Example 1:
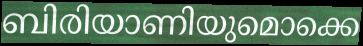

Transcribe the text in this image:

ബിരിയാണിയുമൊക്കെ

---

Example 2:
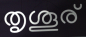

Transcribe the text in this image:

തൃശൂര്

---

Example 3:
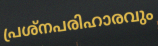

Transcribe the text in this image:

പ്രശ്നപരിഹാരവും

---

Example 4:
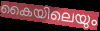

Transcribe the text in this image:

കൈയിലെയും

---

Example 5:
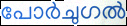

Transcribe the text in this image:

പോർചുഗൽ